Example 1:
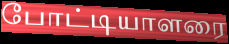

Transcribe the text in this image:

போட்டியாளரை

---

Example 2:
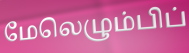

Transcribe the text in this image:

மேலெழும்பிப்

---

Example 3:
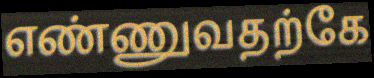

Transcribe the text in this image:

எண்ணுவதற்கே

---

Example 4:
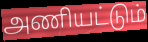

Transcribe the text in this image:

அணியட்டும்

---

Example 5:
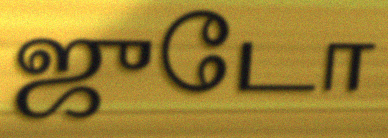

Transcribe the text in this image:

ஜுடோ